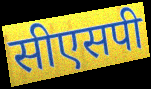
सीएसपी